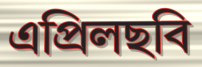
এপ্রিলছবি